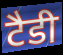
टैडी